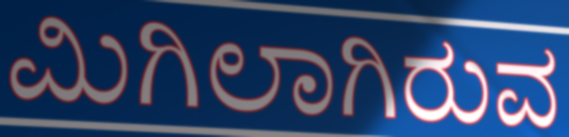
ಮಿಗಿಲಾಗಿರುವ